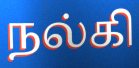
நல்கி